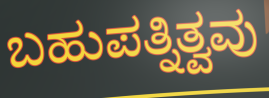
ಬಹುಪತ್ನಿತ್ವವು